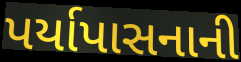
પર્યાપાસનાની